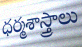
ధర్మశాస్త్రాలు